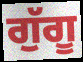
ਗੁੱਗੂ